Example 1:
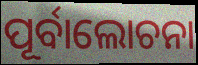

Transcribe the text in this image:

ପୂର୍ବାଲୋଚନା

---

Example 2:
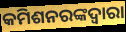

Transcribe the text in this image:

କମିଶନରଙ୍କଦ୍ୱାରା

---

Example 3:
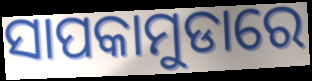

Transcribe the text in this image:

ସାପକାମୁଡାରେ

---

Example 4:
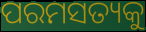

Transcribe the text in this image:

ପରମସତ୍ୟକୁ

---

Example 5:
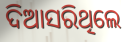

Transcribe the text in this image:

ଦିଆସରିଥିଲେ